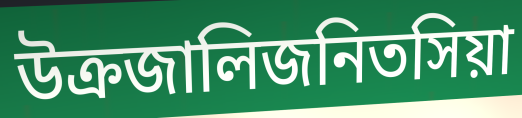
উক্রজালিজনিতসিয়া